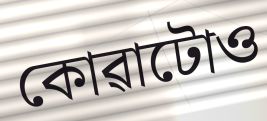
কোৱাটোও